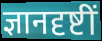
ज्ञानदृष्टीं